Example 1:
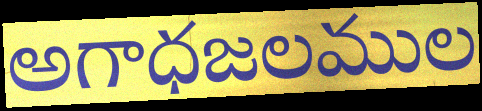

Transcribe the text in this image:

అగాధజలముల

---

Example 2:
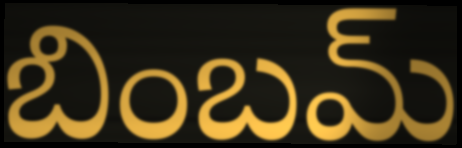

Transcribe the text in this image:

బింబమ్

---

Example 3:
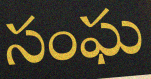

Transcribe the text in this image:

సంఘ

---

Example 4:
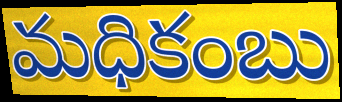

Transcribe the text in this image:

మధికంబు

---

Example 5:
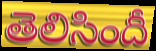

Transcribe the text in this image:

తెలిసిందీ